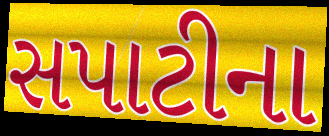
સપાટીના